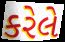
કરેલે